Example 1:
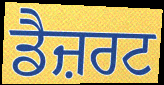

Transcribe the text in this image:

ਡੈਜ਼ਰਟ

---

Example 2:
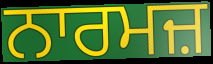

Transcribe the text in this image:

ਨਾਰਮਜ਼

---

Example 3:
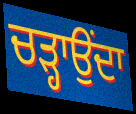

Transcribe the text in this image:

ਚੜ੍ਹਾਉਂਦਾ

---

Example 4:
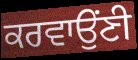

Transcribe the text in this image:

ਕਰਵਾਉਂਣੀ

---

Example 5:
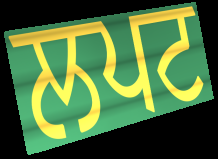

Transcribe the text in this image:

ਲਪਟ